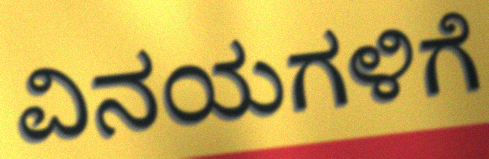
ವಿನಯಗಳಿಗೆ